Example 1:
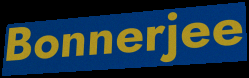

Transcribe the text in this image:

Bonnerjee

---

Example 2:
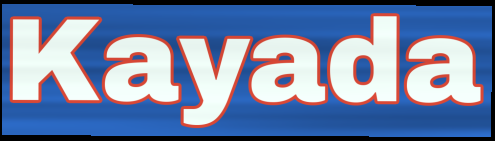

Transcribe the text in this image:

Kayada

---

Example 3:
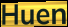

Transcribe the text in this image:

Huen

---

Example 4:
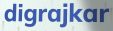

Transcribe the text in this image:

digrajkar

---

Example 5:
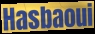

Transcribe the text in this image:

Hasbaoui